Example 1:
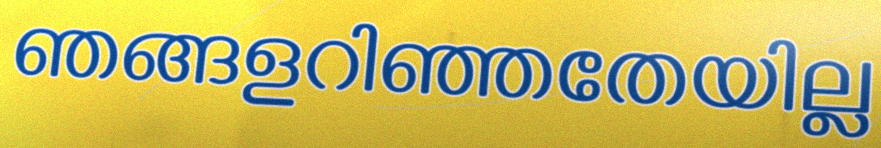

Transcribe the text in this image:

ഞങ്ങളറിഞ്ഞതേയില്ല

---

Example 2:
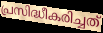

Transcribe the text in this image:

പ്രസിദ്ധീകരിച്ചത്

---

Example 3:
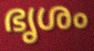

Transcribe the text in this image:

ഭൃശം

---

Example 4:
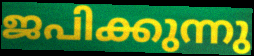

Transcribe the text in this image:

ജപിക്കുന്നു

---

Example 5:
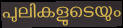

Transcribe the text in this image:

പുലികളുടെയും